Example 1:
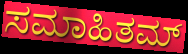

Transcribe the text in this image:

ಸಮಾಹಿತಮ್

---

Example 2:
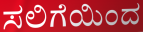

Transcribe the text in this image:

ಸಲಿಗೆಯಿಂದ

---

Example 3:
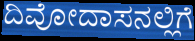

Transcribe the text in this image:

ದಿವೋದಾಸನಲ್ಲಿಗೆ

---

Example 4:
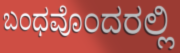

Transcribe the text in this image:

ಬಂಧವೊಂದರಲ್ಲಿ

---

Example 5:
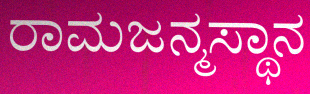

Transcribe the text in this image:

ರಾಮಜನ್ಮಸ್ಥಾನ